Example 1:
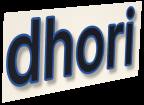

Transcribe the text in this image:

dhori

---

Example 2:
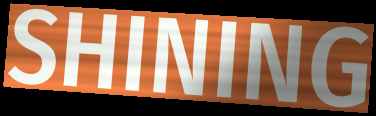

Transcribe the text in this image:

SHINING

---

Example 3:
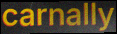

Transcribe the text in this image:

carnally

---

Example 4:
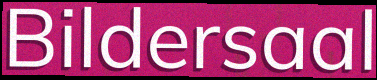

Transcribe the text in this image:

Bildersaal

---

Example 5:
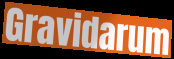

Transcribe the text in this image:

Gravidarum